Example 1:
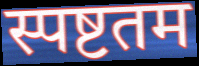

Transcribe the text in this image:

स्पष्टतम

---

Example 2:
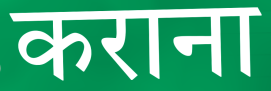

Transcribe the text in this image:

कराना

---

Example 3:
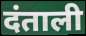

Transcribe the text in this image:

दंताली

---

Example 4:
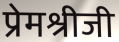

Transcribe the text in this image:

प्रेमश्रीजी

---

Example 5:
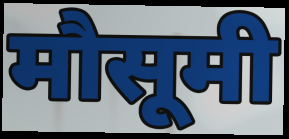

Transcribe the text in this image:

मौसूमी